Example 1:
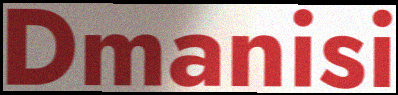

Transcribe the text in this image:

Dmanisi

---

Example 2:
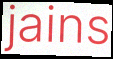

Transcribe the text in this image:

jains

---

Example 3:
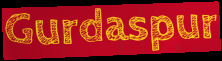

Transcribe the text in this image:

Gurdaspur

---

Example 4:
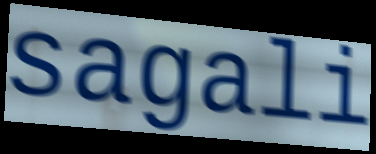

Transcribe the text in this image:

sagali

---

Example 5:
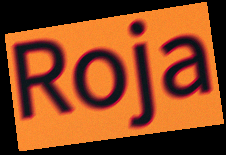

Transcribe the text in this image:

Roja